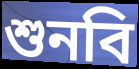
শুনবি